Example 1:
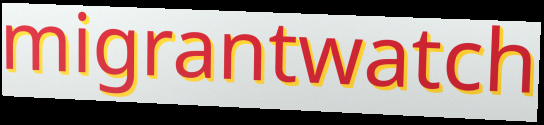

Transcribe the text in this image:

migrantwatch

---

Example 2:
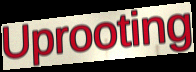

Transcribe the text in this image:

Uprooting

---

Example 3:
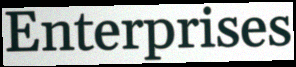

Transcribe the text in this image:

Enterprises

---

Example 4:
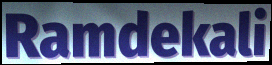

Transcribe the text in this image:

Ramdekali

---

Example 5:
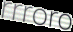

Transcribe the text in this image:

rrroro